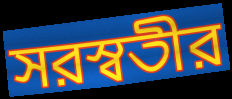
সরস্বতীর